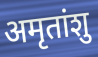
अमृतांशु